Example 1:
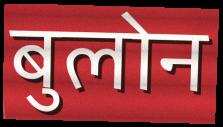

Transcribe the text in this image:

बुलोन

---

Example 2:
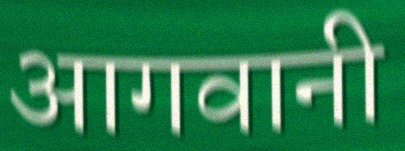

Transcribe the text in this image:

आगवानी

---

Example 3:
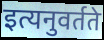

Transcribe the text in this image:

इत्यनुवर्तते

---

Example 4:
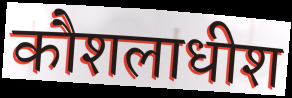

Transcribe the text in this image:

कौशलाधीश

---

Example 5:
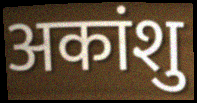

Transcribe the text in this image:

अकांशु